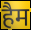
हैम